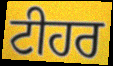
ਟੀਹਰ